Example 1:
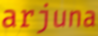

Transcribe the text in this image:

arjuna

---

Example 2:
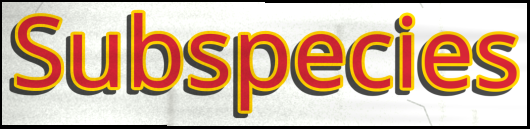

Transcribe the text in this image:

Subspecies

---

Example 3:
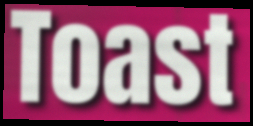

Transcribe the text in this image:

Toast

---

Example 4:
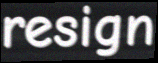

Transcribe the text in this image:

resign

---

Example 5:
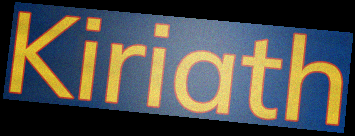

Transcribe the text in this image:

Kiriath